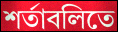
শর্তাবলিতে